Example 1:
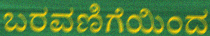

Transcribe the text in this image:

ಬರವಣಿಗೆಯಿಂದ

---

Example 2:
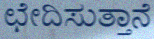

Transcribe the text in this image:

ಛೇದಿಸುತ್ತಾನೆ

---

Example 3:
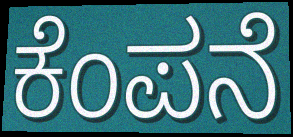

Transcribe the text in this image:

ಕೆಂಪನೆ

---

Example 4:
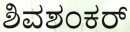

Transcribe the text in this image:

ಶಿವಶಂಕರ್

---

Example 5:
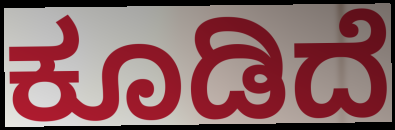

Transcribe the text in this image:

ಕೂಡಿದೆ